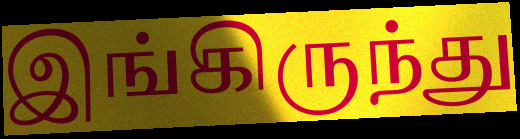
இங்கிருந்து